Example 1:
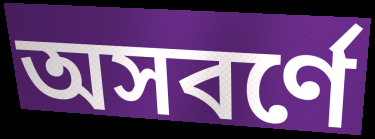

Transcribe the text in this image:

অসবর্ণে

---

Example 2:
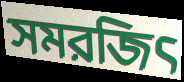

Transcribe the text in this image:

সমরজিৎ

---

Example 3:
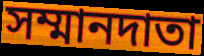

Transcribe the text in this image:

সম্মানদাতা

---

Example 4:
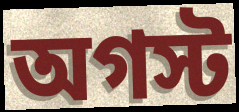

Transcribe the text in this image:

অগস্ট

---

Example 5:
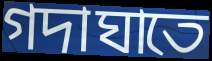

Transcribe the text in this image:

গদাঘাতে